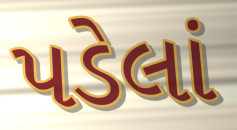
પડેલાં